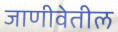
जाणीवेतील